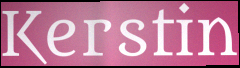
Kerstin